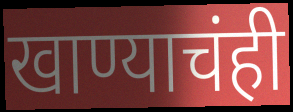
खाण्याचंही